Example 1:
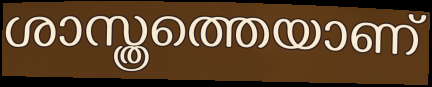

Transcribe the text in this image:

ശാസ്ത്രത്തെയാണ്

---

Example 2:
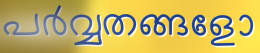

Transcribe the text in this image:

പർവ്വതങ്ങളോ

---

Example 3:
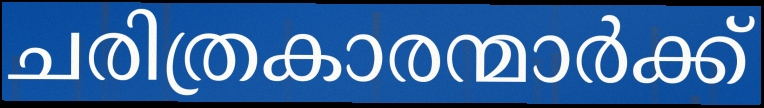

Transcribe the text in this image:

ചരിത്രകാരന്മാർക്ക്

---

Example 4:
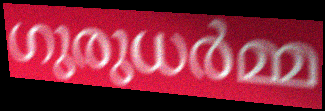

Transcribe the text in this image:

ഗുരുധർമ്മ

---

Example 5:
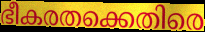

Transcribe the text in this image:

ഭീകരതക്കെതിരെ